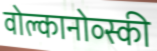
वोल्कानोव्स्की